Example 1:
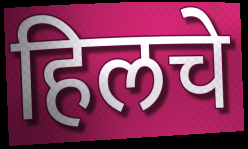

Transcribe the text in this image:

हिलचे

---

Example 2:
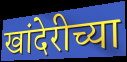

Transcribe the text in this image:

खांदेरीच्या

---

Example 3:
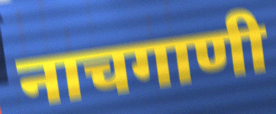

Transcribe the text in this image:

नाचगाणी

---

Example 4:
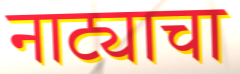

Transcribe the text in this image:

नाट्याचा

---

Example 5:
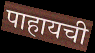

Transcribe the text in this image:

पाहायची